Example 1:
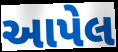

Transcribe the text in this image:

આપેલ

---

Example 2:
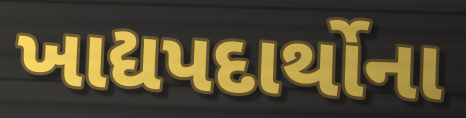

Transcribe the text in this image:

ખાદ્યપદાર્થોના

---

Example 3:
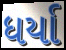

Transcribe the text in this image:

ધર્યા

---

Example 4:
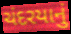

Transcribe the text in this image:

ચંદરયાનું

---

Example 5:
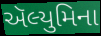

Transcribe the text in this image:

ઍલ્યુમિના